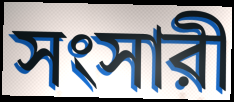
সংসারী